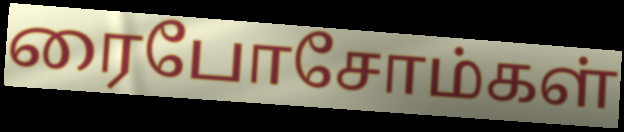
ரைபோசோம்கள்